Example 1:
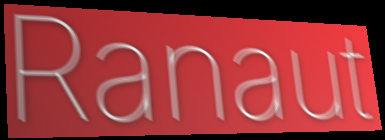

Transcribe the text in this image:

Ranaut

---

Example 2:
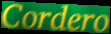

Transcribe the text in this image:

Cordero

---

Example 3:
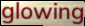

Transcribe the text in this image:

glowing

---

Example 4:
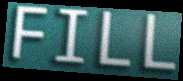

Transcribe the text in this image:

FILL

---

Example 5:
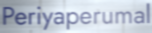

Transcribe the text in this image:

Periyaperumal